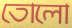
তোলো